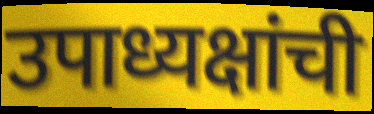
उपाध्यक्षांची